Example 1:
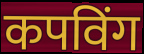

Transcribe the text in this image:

कपविंग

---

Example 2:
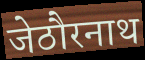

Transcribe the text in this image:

जेठौरनाथ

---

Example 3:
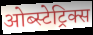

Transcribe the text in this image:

ओब्स्टेट्रिक्स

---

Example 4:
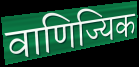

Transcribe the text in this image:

वाणिज्यिक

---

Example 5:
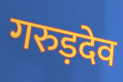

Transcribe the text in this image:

गरुड़देव